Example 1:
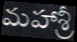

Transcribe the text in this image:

మహాశ్రీ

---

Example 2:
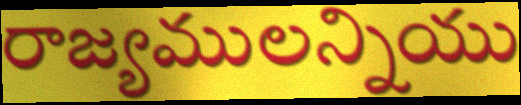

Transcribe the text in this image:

రాజ్యములన్నియు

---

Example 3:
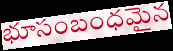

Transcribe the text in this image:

భూసంబంధమైన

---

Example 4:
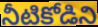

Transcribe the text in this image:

నీటికోడిని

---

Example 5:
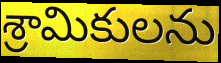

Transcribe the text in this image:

శ్రామికులను